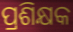
ପ୍ରଶିକ୍ଷକ